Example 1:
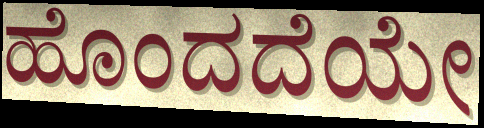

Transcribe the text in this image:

ಹೊಂದದೆಯೇ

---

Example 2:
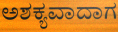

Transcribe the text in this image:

ಅಶಕ್ಯವಾದಾಗ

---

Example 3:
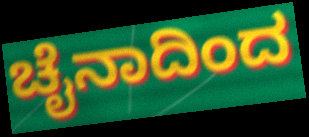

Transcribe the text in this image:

ಚೈನಾದಿಂದ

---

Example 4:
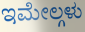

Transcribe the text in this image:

ಇಮೇಲ್ಗಳು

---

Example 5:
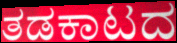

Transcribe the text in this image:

ತಡಕಾಟದ